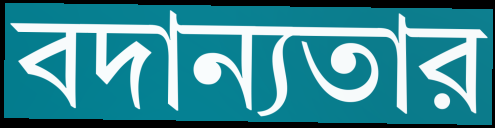
বদান্যতার